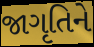
જાગૃતિને